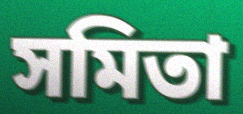
সমিতা